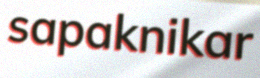
sapaknikar